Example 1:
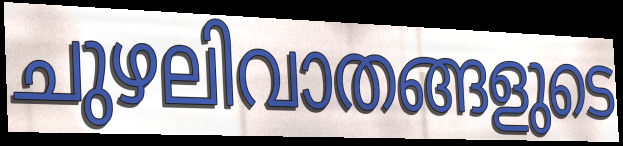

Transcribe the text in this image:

ചുഴലിവാതങ്ങളുടെ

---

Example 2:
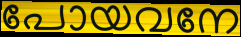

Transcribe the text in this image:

പോയവനേ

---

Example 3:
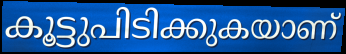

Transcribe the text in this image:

കൂട്ടുപിടിക്കുകയാണ്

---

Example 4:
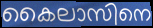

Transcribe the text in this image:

കൈലാസിനെ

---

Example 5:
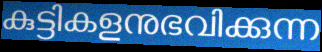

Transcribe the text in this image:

കുട്ടികളനുഭവിക്കുന്ന